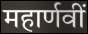
महार्णवीं